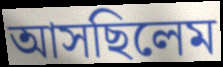
আসছিলেম